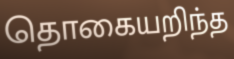
தொகையறிந்த